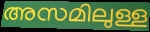
അസമിലുള്ള